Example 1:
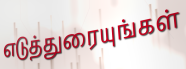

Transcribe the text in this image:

எடுத்துரையுங்கள்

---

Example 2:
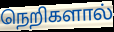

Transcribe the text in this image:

நெறிகளால்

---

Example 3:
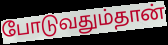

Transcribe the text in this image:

போடுவதும்தான்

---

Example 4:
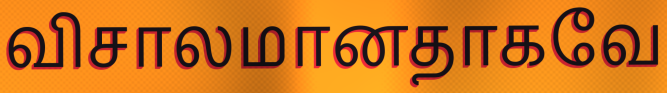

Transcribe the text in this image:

விசாலமானதாகவே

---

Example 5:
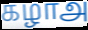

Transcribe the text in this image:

கழாஅ